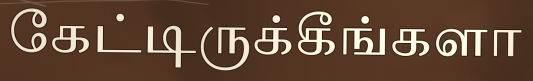
கேட்டிருக்கீங்களா